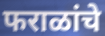
फराळांचे